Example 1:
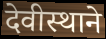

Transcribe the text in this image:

देवीस्थाने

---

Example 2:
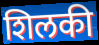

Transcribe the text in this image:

शिलकी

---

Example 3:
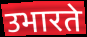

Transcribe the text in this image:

उभारते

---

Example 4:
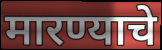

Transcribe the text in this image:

मारण्याचे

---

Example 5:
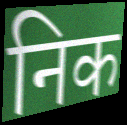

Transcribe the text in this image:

निक